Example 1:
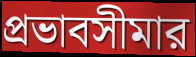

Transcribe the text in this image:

প্রভাবসীমার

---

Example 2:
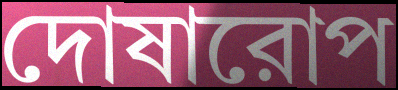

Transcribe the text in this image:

দোষারোপ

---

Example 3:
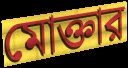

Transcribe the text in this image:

মোক্তার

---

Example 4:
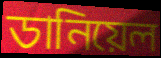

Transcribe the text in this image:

ডানিয়েল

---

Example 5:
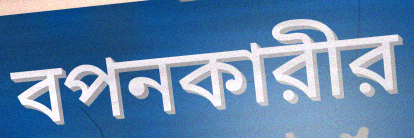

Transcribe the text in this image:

বপনকারীর